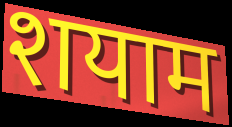
शयाम